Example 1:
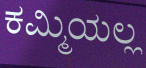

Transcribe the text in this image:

ಕಮ್ಮಿಯಲ್ಲ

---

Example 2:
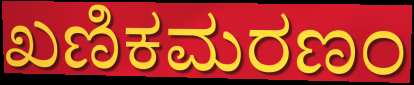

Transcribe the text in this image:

ಖಣಿಕಮರಣಂ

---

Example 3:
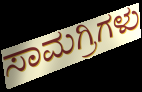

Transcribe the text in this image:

ಸಾಮಗ್ರಿಗಳು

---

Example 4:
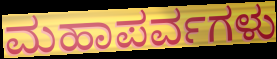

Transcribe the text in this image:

ಮಹಾಪರ್ವಗಳು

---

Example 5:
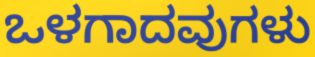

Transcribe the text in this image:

ಒಳಗಾದವುಗಳು